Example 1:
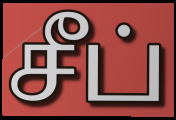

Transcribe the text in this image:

சீப்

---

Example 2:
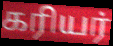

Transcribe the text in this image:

கரியர்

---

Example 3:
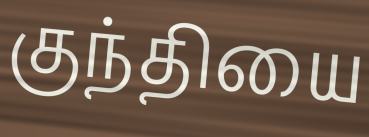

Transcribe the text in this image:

குந்தியை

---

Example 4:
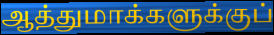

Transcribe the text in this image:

ஆத்துமாக்களுக்குப்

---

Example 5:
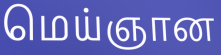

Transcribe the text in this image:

மெய்ஞான